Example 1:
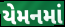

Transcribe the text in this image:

યેમનમાં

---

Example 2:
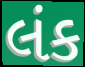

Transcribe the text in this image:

લંક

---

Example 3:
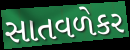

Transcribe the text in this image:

સાતવળેકર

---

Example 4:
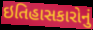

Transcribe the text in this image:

ઇતિહાસકારોનું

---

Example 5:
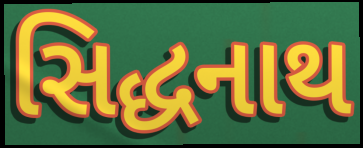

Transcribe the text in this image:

સિદ્ધનાથ